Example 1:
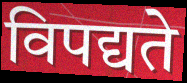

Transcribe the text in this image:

विपद्यते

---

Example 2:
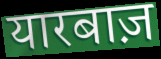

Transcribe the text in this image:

यारबाज़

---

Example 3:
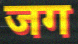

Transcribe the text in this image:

जग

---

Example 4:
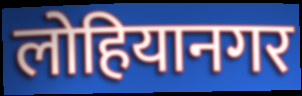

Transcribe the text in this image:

लोहियानगर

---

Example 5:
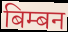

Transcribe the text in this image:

बिम्बन